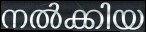
നൽക്കിയ